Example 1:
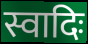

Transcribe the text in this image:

स्वादिः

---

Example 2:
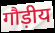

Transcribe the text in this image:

गौड़ीय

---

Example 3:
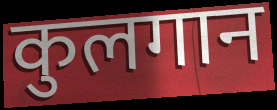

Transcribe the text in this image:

कुलगान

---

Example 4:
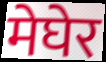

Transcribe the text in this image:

मेघेर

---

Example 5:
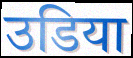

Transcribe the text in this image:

उडिया